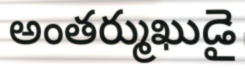
అంతర్ముఖుడై